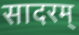
सादरम्